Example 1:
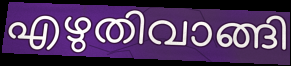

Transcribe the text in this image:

എഴുതിവാങ്ങി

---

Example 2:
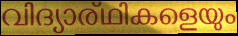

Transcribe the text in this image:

വിദ്യാര്ഥികളെയും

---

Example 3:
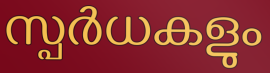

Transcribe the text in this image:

സ്പർധകളും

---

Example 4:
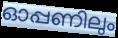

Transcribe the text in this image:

ഓപ്പണിലും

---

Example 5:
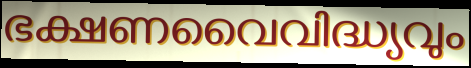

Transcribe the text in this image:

ഭക്ഷണവൈവിദ്ധ്യവും